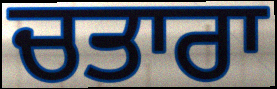
ਚਤਾਰਾ